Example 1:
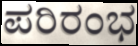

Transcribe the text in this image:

ಪರಿರಂಭ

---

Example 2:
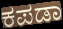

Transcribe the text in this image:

ಕಪಡಾ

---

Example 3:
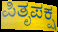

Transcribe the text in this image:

ಪಿತೃಪಕ್ಷ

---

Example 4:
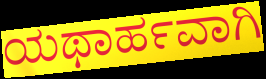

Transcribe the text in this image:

ಯಥಾರ್ಹವಾಗಿ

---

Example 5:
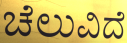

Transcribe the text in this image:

ಚೆಲುವಿದೆ